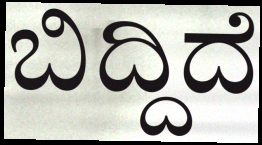
ಬಿದ್ದಿದೆ